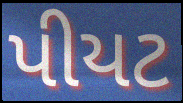
પીયટ